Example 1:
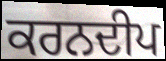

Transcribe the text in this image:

ਕਰਨਦੀਪ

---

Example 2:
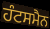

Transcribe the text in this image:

ਹੰਟਸਮੈਨ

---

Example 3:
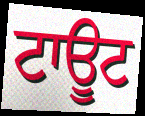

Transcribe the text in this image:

ਟਾਊਟ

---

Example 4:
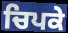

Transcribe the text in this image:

ਚਿਪਕੇ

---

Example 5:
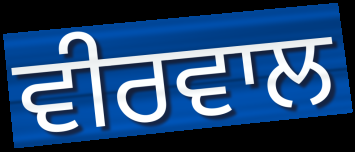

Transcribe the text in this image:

ਵੀਰਵਾਲ